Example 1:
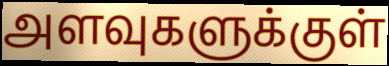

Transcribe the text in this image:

அளவுகளுக்குள்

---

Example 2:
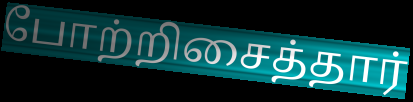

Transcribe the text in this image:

போற்றிசைத்தார்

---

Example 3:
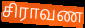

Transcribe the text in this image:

சிராவண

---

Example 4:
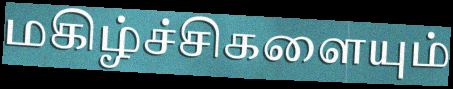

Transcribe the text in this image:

மகிழ்ச்சிகளையும்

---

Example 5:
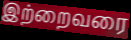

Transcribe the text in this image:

இற்றைவரை